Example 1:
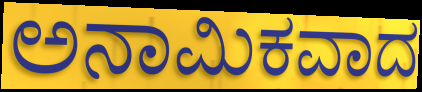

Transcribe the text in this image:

ಅನಾಮಿಕವಾದ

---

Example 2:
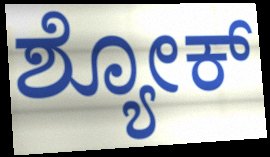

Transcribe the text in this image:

ಶ್ಯೋಕ್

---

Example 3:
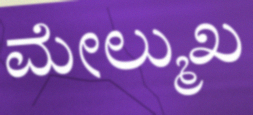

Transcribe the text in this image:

ಮೇಲ್ಮುಖ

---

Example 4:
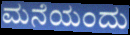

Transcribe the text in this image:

ಮನೆಯಂದು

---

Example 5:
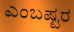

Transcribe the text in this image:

ಎಂಬಷ್ಟರ